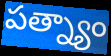
పత్న్యాం